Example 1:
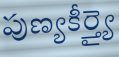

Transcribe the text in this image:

పుణ్యకీర్త్యై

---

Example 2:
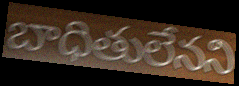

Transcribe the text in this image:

బాధితులేనని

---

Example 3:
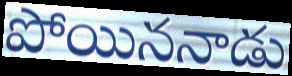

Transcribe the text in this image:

పోయిననాడు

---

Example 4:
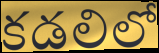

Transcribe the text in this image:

కడలిలో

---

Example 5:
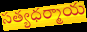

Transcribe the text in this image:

సత్యధర్మాయ